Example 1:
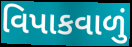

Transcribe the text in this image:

વિપાકવાળું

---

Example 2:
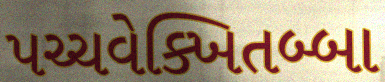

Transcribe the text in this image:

પચ્ચવેક્ખિતબ્બા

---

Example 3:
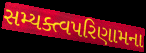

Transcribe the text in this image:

સમ્યક્ત્વપરિણામના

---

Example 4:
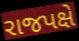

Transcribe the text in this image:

રાજપક્ષે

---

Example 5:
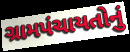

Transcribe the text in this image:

ગ્રામપંચાયતોનું